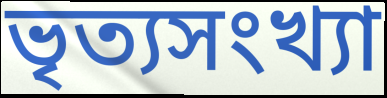
ভৃত্যসংখ্যা